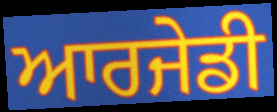
ਆਰਜੇਡੀ